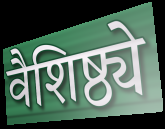
वैशिष्ठ्ये